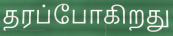
தரப்போகிறது